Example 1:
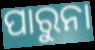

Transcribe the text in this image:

ପାରୁନା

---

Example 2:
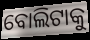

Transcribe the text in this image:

ବୋଲିଟାକୁ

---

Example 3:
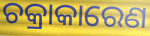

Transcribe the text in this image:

ଚକ୍ରାକାରେଣ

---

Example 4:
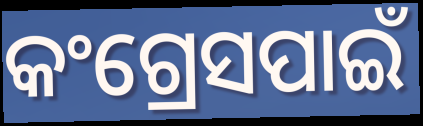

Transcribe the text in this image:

କଂଗ୍ରେସପାଇଁ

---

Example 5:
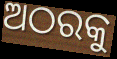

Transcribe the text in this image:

ଅଠରକୁ